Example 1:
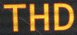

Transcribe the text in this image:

THD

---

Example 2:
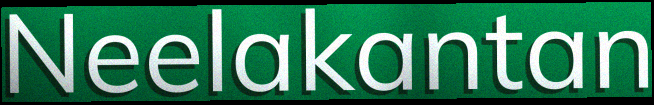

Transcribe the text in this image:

Neelakantan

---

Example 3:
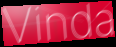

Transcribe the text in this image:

Vinda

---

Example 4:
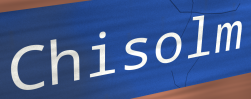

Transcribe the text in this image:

Chisolm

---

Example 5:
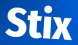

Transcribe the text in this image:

Stix